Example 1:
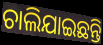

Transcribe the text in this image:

ଚାଲିଯାଇଛନ୍ତି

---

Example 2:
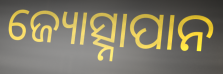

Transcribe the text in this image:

ଜ୍ୟୋତ୍ସ୍ନାପାନ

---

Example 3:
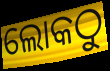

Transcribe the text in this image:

ଲୋକଠୁ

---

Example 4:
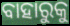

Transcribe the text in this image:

ବାହାରୁକୁ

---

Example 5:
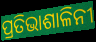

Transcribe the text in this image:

ପ୍ରତିଭାଶାଳିନୀ